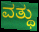
ವತ್ಥು